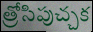
త్రోసిపుచ్చక